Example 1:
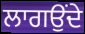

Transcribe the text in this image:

ਲਾਗਉਂਦੇ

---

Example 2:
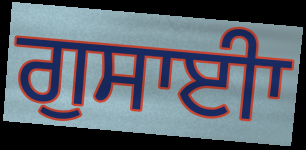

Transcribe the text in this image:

ਗੁਸਾਈਾ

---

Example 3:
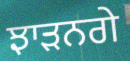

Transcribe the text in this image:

ਝਾੜਨਗੇ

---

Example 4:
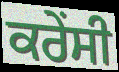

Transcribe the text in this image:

ਕਰੇੰਸੀ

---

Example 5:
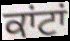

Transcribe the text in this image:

ਕਾਂਟਾਂ